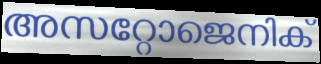
അസറ്റോജെനിക്